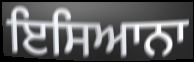
ਇਸਿਆਨਾ